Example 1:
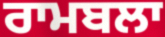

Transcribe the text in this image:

ਰਾਮਬਲਾ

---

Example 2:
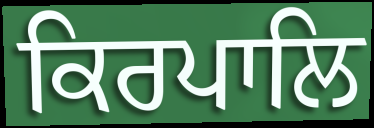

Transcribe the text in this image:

ਕਿਰਪਾਲਿ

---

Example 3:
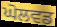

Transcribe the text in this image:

ਘੋਲਵਡ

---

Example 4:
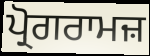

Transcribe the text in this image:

ਪ੍ਰੋਗਰਾਮਜ਼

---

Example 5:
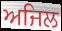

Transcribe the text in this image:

ਅਜਿਲ